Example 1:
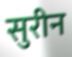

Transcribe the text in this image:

सुरीन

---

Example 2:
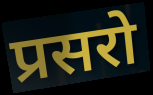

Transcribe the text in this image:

प्रसरो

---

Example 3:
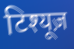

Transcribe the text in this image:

टिश्यूज़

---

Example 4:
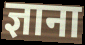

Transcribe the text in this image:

ज्ञाना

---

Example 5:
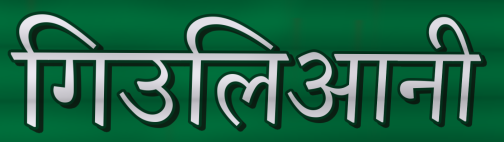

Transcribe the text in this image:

गिउलिआनी